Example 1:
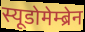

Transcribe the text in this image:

स्यूडोमेम्ब्रेन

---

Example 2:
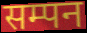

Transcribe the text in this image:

सम्पन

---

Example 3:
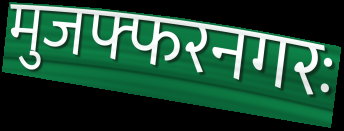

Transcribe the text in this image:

मुजफ्फरनगरः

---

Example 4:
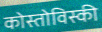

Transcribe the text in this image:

कोस्तोविस्की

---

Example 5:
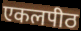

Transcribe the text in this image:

एकलपीठ